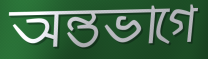
অন্তভাগে